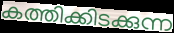
കത്തിക്കിടക്കുന്ന